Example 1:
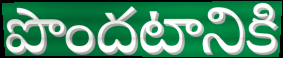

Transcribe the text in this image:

పొందటానికి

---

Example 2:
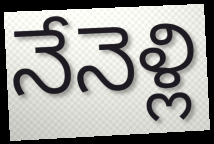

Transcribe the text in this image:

నేనెళ్లి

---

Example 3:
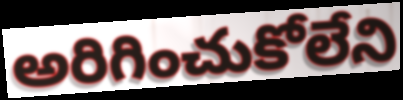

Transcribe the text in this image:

అరిగించుకోలేని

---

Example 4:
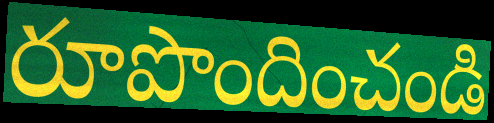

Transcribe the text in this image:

రూపొందించండి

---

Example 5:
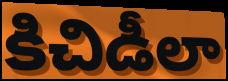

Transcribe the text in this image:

కిచిడీలా